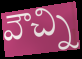
వౌచ్ని